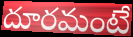
దూరమంటే